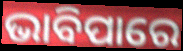
ଭାବିପାରେ